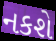
નકશે